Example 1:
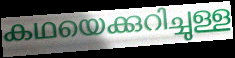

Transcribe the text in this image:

കഥയെക്കുറിച്ചുള്ള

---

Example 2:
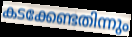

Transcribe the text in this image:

കടക്കേണ്ടതിന്നും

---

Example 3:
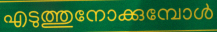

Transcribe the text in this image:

എടുത്തുനോക്കുമ്പോൾ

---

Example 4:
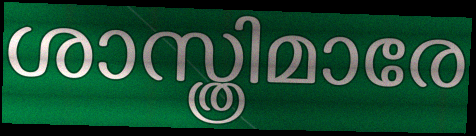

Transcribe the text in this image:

ശാസ്ത്രിമാരേ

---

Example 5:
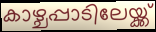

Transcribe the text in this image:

കാഴ്ചപ്പാടിലേയ്ക്ക്